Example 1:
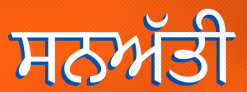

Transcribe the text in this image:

ਸਨਅੱਤੀ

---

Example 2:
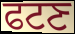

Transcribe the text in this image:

ਫਟਣ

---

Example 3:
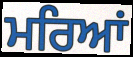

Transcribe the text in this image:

ਮਰਿਆਂ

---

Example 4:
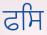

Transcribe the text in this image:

ਫਸਿ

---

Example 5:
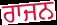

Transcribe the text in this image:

ਰਾਜਨ